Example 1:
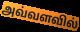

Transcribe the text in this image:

அவ்வளவில்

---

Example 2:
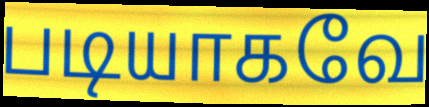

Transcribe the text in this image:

படியாகவே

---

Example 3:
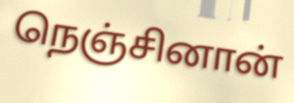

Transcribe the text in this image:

நெஞ்சினான்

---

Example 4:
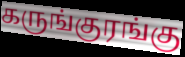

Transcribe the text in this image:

கருங்குரங்கு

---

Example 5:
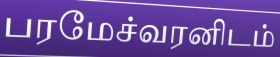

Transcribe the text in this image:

பரமேச்வரனிடம்